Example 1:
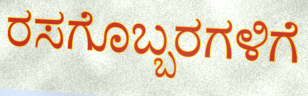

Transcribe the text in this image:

ರಸಗೊಬ್ಬರಗಳಿಗೆ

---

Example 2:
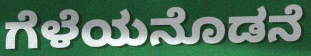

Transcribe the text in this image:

ಗೆಳೆಯನೊಡನೆ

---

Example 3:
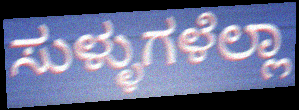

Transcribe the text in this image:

ಸುಳ್ಳುಗಳೆಲ್ಲಾ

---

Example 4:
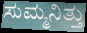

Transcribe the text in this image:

ಸುಮ್ಮನಿತ್ತು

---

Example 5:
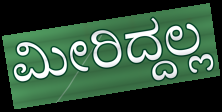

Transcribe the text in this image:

ಮೀರಿದ್ದಲ್ಲ